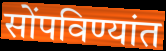
सोंपविण्यांत